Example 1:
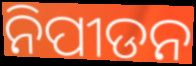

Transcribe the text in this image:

ନିପୀଡନ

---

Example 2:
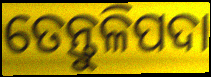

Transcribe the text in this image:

ତେନ୍ତୁଳିପଦା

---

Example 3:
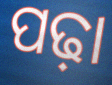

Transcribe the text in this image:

ପଢ଼ା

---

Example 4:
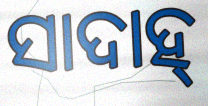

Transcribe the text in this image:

ସାଦାହ୍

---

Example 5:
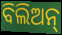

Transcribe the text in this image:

ବିଲିଅନ୍